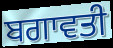
ਬਗਾਵਤੀ